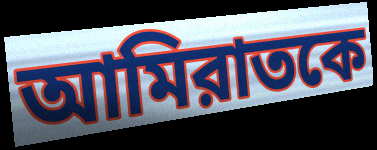
আমিরাতকে